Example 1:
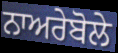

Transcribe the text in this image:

ਨਾਅਰੇਬੋਲੇ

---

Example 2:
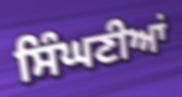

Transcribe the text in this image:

ਸਿੰਘਣੀਆਂ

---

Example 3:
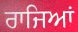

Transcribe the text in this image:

ਰਾਜਿਆਂ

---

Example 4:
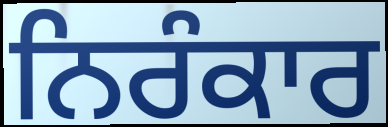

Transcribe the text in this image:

ਨਿਰੰਕਾਰ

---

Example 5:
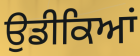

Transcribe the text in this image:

ਉਡੀਕਿਆਂ